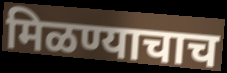
मिळण्याचाच